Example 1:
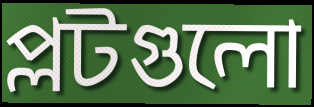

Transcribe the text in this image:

প্লটগুলো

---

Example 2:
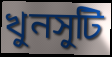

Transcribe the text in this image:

খুনসুটি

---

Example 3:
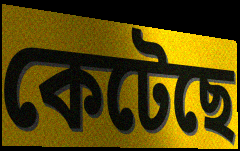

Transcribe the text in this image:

কেটেছে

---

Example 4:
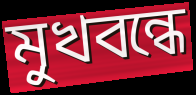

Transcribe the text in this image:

মুখবন্ধে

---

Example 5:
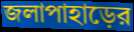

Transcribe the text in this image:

জলাপাহাড়ের